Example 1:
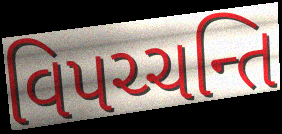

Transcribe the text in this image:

વિપચ્ચન્તિ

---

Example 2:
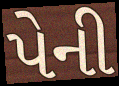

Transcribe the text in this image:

પેની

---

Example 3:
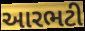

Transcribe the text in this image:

આરભટી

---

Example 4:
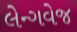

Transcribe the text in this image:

લેન્ગવેજ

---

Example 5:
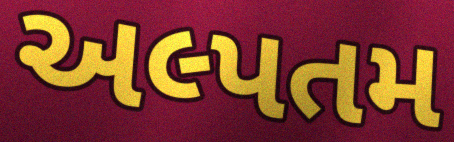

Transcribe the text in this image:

અલ્પતમ